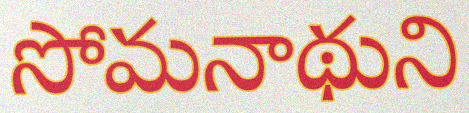
సోమనాథుని